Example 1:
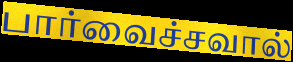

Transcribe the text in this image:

பார்வைச்சவால்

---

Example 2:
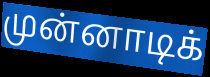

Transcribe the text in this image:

முன்னாடிக்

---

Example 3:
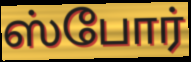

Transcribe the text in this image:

ஸ்போர்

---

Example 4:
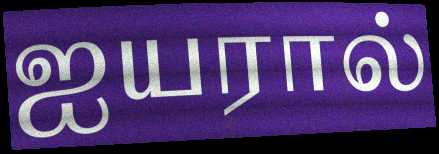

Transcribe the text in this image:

ஐயரால்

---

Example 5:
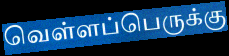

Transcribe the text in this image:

வெள்ளப்பெருக்கு